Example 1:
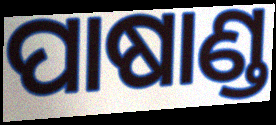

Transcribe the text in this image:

ପାଷାଣ୍ଡ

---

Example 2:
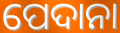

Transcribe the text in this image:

ପେଦାନା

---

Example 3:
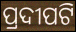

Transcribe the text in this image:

ପ୍ରଦୀପଟି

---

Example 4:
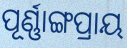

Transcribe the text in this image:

ପୂର୍ଣ୍ଣାଙ୍ଗପ୍ରାୟ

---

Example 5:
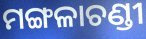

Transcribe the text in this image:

ମଙ୍ଗଳାଚଣ୍ଡୀ